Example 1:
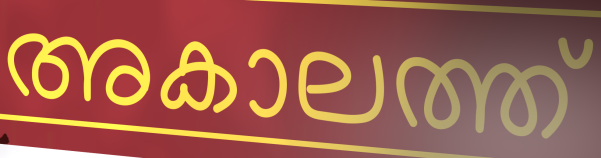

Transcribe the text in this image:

അകാലത്ത്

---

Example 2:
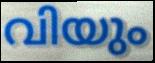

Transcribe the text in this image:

വിയും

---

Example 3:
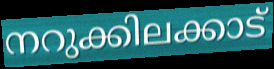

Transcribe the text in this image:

നറുക്കിലക്കാട്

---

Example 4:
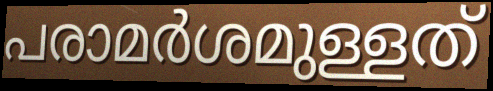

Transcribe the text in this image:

പരാമർശമുള്ളത്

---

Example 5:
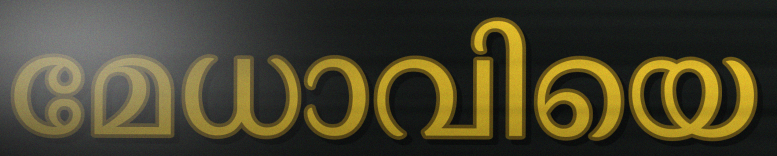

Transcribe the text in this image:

മേധാവിയെ